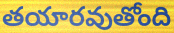
తయారవుతోంది